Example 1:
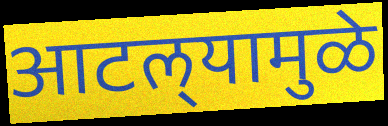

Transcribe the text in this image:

आटल्यामुळे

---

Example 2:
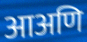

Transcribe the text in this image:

आअणि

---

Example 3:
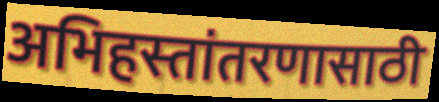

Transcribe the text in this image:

अभिहस्तांतरणासाठी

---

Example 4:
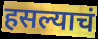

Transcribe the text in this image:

हसल्याचं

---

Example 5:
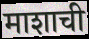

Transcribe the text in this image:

माशाची